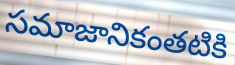
సమాజానికంతటికి